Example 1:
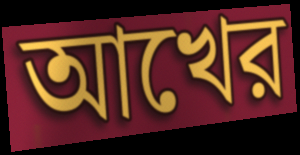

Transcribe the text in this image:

আখের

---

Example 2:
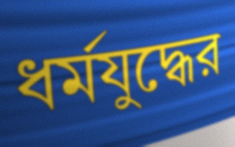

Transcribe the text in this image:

ধর্মযুদ্ধের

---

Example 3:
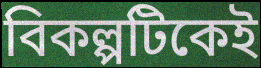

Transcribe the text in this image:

বিকল্পটিকেই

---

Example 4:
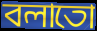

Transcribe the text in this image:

বলাতো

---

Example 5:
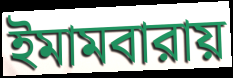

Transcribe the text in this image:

ইমামবারায়